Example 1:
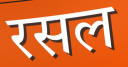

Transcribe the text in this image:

रसल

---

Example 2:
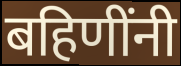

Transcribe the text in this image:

बहिणींनी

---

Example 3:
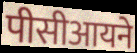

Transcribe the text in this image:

पीसीआयने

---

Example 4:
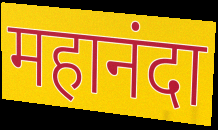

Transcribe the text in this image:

महानंदा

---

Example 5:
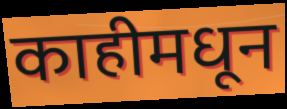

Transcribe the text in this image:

काहीमधून